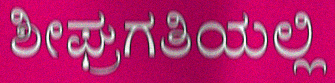
ಶೀಘ್ರಗತಿಯಲ್ಲಿ